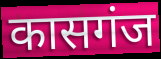
कासगंज